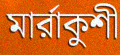
মার্রাকুশী